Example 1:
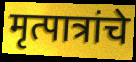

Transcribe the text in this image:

मृत्पात्रांचे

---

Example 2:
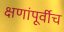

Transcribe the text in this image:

क्षणांपूर्वीच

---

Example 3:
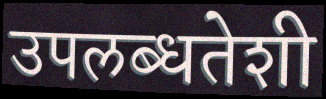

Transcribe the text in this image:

उपलब्धतेशी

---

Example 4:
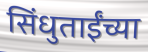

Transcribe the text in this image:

सिंधुताईंच्या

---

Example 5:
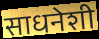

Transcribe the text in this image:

साधनेशी